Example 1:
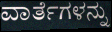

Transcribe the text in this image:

ವಾರ್ತೆಗಳನ್ನು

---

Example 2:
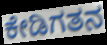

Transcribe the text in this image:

ಕೇಡಿಗತನ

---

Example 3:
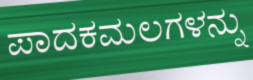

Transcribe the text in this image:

ಪಾದಕಮಲಗಳನ್ನು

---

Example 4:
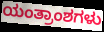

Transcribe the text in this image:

ಯಂತ್ರಾಂಶಗಳು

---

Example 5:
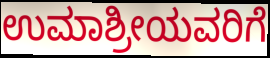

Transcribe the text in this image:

ಉಮಾಶ್ರೀಯವರಿಗೆ